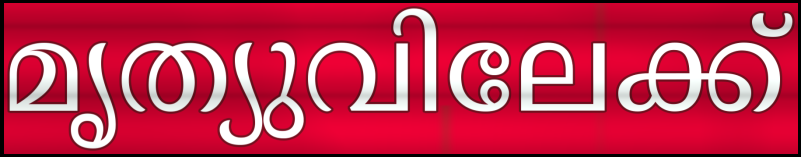
മൃത്യുവിലേക്ക്